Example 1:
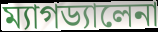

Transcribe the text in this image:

ম্যাগড্যালেনা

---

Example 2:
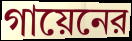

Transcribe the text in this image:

গায়েনের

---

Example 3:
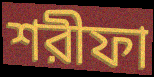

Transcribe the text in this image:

শরীফা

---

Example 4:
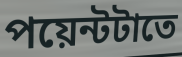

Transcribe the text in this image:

পয়েন্টটাতে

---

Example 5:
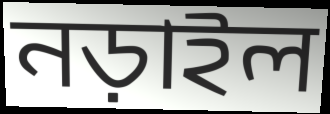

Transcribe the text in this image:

নড়াইল